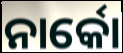
ନାର୍କୋ